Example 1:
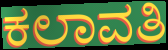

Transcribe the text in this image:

ಕಲಾವತಿ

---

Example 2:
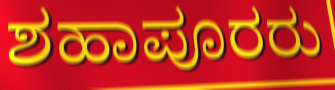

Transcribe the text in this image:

ಶಹಾಪೂರರು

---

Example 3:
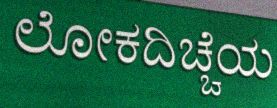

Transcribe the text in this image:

ಲೋಕದಿಚ್ಚೆಯ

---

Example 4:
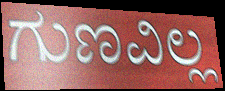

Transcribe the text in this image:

ಗುಣವಿಲ್ಲ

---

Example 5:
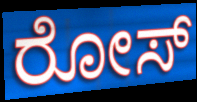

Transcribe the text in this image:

ರೋಸ್